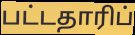
பட்டதாரிப்